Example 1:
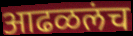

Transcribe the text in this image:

आढळलंच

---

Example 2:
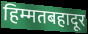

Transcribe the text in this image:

हिम्मतबहादूर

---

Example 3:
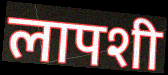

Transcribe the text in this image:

लापशी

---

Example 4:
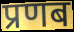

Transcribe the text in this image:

प्रणब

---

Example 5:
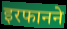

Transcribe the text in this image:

इरफानने